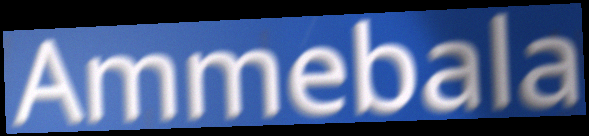
Ammebala